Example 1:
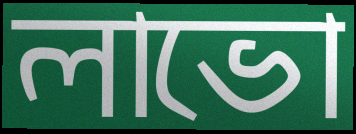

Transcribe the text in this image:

লাভো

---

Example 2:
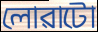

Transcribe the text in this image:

লোৱাটো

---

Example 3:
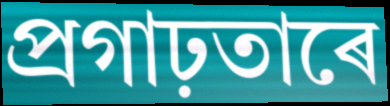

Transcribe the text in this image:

প্ৰগাঢ়তাৰে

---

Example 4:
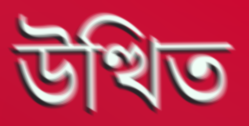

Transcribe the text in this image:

উত্থিত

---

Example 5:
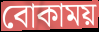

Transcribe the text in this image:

বোকাময়